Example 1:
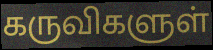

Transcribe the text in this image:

கருவிகளுள்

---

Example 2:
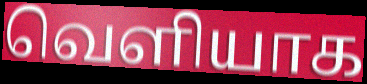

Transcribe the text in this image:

வெளியாக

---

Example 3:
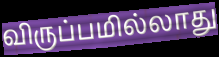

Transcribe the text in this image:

விருப்பமில்லாது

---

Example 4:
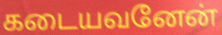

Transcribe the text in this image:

கடையவனேன்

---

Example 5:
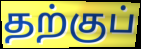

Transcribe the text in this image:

தற்குப்